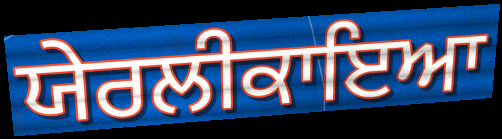
ਯੇਰਲੀਕਾਇਆ